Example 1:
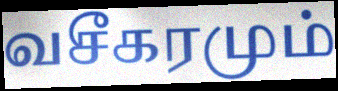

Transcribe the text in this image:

வசீகரமும்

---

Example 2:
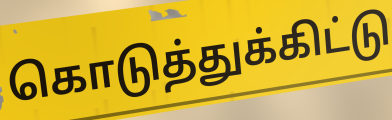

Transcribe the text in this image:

கொடுத்துக்கிட்டு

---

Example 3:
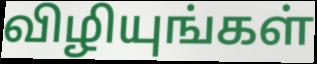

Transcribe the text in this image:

விழியுங்கள்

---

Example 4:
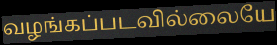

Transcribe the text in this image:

வழங்கப்படவில்லையே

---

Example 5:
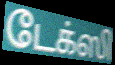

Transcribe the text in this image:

டேக்ஸி